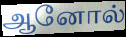
ஆனோல்